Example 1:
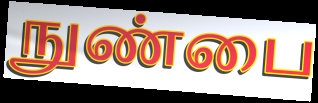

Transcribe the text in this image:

நுண்பை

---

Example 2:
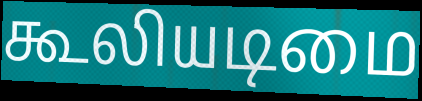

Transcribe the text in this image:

கூலியடிமை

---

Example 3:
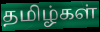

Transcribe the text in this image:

தமிழ்கள்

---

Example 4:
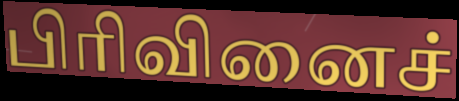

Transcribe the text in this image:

பிரிவினைச்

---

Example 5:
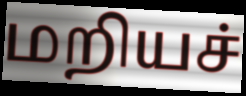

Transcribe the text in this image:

மறியச்